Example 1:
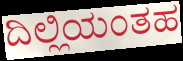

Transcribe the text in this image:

ದಿಲ್ಲಿಯಂತಹ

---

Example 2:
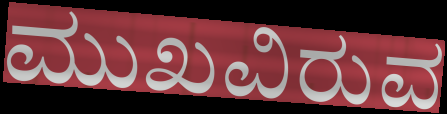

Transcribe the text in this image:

ಮುಖವಿರುವ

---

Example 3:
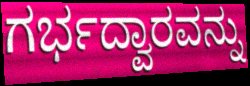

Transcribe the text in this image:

ಗರ್ಭದ್ವಾರವನ್ನು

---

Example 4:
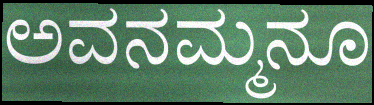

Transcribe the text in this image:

ಅವನಮ್ಮನೂ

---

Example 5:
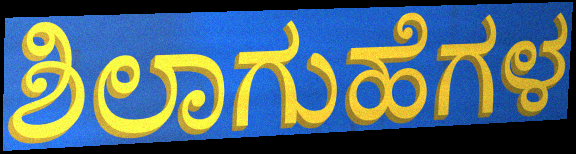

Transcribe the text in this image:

ಶಿಲಾಗುಹೆಗಳ